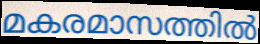
മകരമാസത്തിൽ